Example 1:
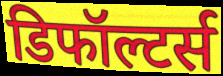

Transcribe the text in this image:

डिफॉल्टर्स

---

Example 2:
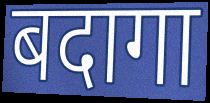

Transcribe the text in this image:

बदागा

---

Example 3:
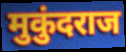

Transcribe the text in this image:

मुकुंदराज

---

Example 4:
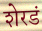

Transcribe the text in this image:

शेरडं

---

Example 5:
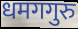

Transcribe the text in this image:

धमगगुरु